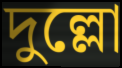
দুল্লো